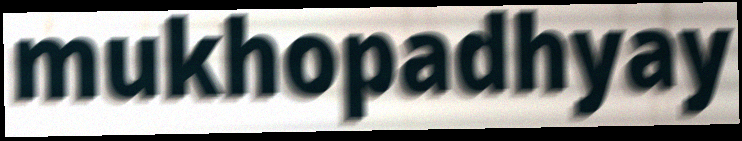
mukhopadhyay